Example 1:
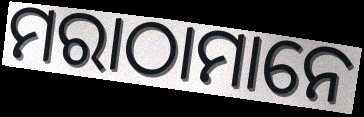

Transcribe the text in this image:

ମରାଠାମାନେ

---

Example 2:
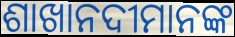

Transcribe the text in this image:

ଶାଖାନଦୀମାନଙ୍କ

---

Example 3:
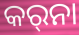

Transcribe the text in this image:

କର୍‌ନା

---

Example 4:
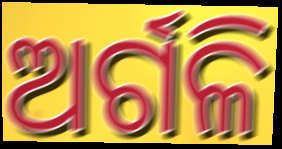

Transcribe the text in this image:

ଅର୍ଗଳି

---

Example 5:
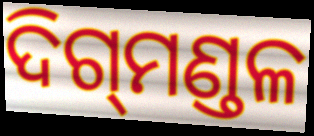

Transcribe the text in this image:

ଦିଗ୍‍ମଣ୍ଡଳ